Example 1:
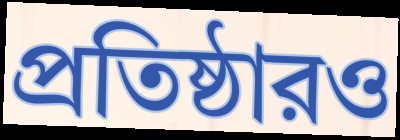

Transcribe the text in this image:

প্রতিষ্ঠারও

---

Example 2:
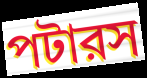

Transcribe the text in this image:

পটারস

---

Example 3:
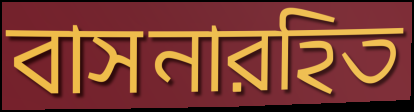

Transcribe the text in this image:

বাসনারহিত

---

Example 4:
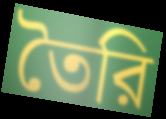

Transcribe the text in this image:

তৈরি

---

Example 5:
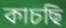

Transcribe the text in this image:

কাচছি